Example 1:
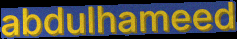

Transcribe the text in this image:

abdulhameed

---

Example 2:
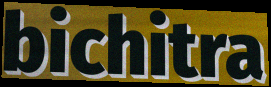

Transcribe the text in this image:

bichitra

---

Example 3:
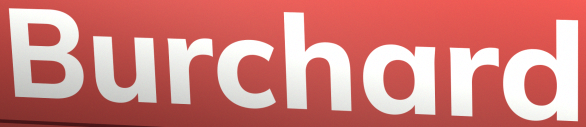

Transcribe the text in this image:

Burchard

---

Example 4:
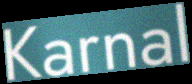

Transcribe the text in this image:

Karnal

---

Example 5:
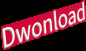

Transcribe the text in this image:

Dwonload